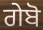
ਗੇਬੋ